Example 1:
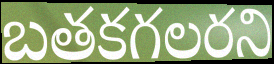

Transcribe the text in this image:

బతకగలరని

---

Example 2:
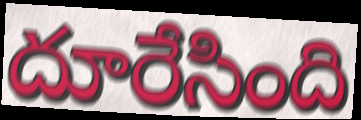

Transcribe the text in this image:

దూరేసింది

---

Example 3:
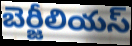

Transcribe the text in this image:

బెర్జీలియస్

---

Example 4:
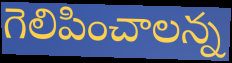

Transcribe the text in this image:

గెలిపించాలన్న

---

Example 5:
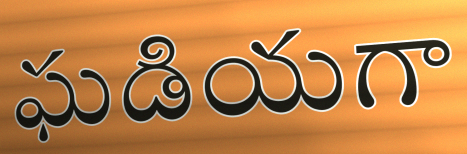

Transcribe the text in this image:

ఘడియగా